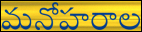
మనోహరాల